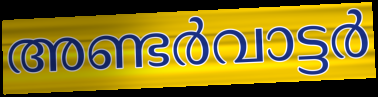
അണ്ടർവാട്ടർ